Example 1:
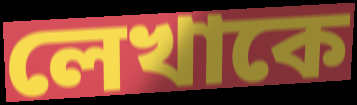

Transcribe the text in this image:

লেখাকে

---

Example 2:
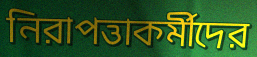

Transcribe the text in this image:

নিরাপত্তাকর্মীদের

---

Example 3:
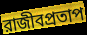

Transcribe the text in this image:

রাজীবপ্রতাপ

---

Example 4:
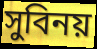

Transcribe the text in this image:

সুবিনয়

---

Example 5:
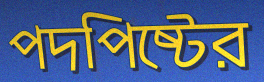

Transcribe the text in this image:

পদপিষ্টের